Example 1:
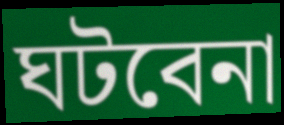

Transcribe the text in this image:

ঘটবেনা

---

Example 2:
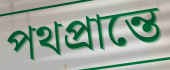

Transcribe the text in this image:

পথপ্রান্তে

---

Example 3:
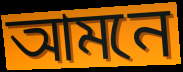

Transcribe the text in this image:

আমনে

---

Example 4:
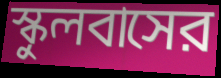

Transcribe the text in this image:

স্কুলবাসের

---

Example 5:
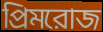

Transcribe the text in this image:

প্রিমরোজ